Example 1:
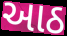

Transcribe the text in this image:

આઠ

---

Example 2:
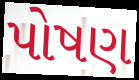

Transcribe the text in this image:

પોષણ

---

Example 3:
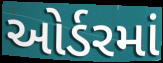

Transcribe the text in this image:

ઓર્ડરમાં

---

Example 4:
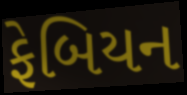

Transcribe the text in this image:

ફેબિયન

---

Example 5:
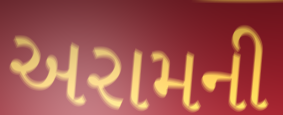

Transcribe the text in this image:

અરામની